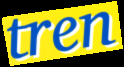
tren